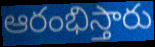
ఆరంభిస్తారు